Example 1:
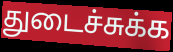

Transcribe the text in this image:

துடைச்சுக்க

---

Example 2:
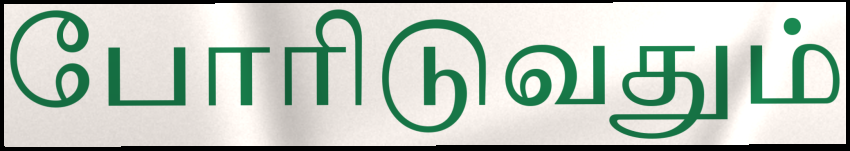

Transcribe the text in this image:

போரிடுவதும்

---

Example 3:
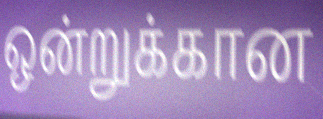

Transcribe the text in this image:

ஒன்றுக்கான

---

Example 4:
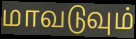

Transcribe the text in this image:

மாவடுவும்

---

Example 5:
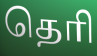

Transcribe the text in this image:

தெரி